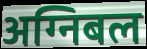
अग्निबल